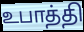
உபாத்தி